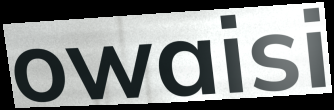
owaisi